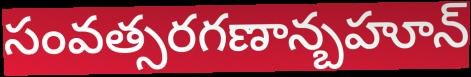
సంవత్సరగణాన్బహూన్